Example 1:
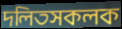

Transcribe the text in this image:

দলিতসকলক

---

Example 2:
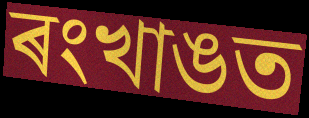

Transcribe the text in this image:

ৰংখাঙত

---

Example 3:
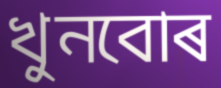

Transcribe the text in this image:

খুনবোৰ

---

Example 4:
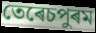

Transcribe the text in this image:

তেৰেচপুৰম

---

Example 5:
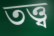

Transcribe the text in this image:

তত্ত্ব